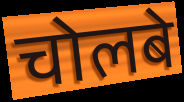
चोलबे